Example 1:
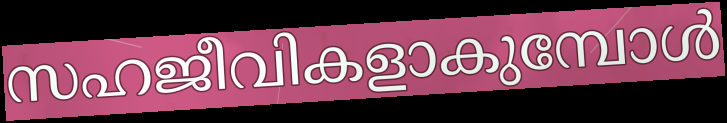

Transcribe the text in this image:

സഹജീവികളാകുമ്പോൾ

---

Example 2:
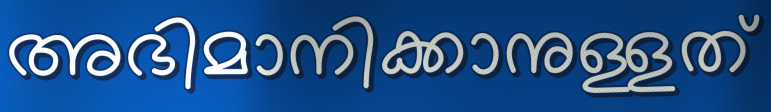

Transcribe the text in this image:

അഭിമാനിക്കാനുള്ളത്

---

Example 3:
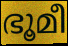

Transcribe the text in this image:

ഭൂമീ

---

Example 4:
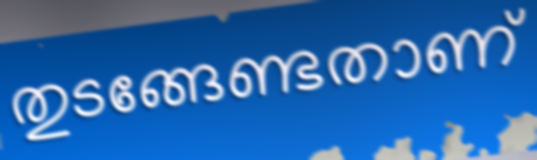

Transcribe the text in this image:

തുടങ്ങേണ്ടതാണ്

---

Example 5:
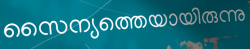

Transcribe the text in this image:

സൈന്യത്തെയായിരുന്നു